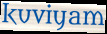
kuviyam